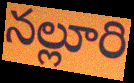
నల్లూరి